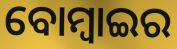
ବୋମ୍ବାଇର